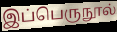
இப்பெருநூல்